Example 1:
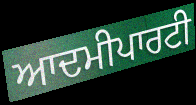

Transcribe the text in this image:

ਆਦਮੀਪਾਰਟੀ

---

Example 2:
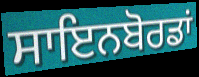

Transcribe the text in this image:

ਸਾਇਨਬੋਰਡਾਂ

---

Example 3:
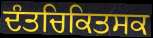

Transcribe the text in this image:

ਦੰਤਚਿਕਿਤਸਕ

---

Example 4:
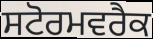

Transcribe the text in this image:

ਸਟੋਰਮਵਰੈਕ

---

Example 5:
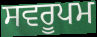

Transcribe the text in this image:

ਸਵਰੂਪਮ